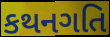
કથનગતિ